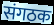
संगठक